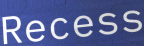
Recess